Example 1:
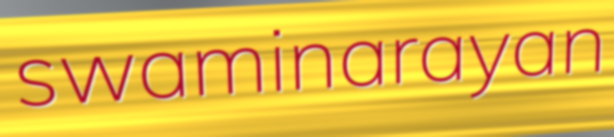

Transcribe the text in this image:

swaminarayan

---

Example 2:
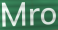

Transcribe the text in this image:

Mro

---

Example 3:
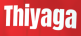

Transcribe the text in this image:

Thiyaga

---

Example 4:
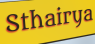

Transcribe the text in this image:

Sthairya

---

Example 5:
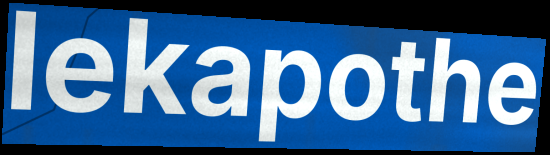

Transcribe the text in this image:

lekapothe